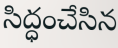
సిద్ధంచేసిన